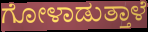
ಗೋಳಾಡುತ್ತಾಳೆ